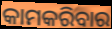
କାମକରିବାର